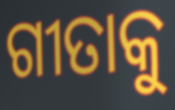
ଗୀତାକୁ